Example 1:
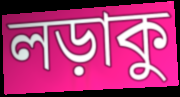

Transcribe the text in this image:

লড়াকু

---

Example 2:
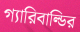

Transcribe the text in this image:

গ্যারিবাল্ডির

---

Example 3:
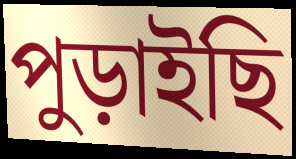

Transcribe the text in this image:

পুড়াইছি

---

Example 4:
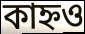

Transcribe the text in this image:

কাহ্নও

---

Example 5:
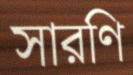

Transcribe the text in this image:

সারণি